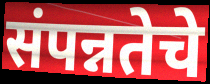
संपन्नतेचे